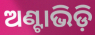
ଅଣ୍ଟାଭିଡ଼ି